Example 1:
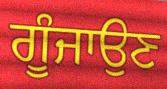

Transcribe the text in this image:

ਗੂੰਜਾਉਣ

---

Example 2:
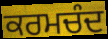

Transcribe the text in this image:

ਕਰਮਚੰਦ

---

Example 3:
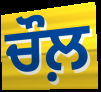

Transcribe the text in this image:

ਚੌਲ਼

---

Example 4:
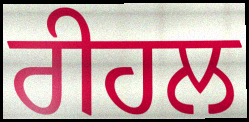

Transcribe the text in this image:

ਰੀਹਲ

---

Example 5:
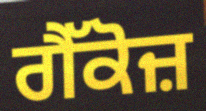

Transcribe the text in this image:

ਗੈੱਕੋਜ਼